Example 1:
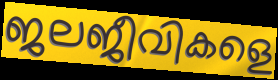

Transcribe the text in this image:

ജലജീവികളെ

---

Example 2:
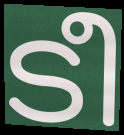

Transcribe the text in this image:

ടീ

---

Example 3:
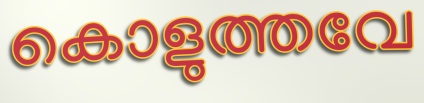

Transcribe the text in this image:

കൊളുത്തവേ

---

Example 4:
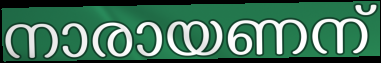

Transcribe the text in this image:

നാരായണന്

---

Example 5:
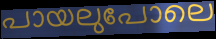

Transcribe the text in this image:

പായലുപോലെ